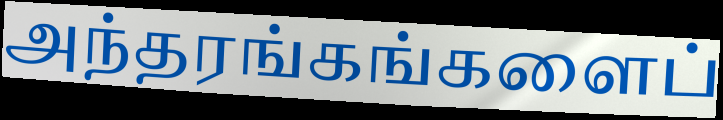
அந்தரங்கங்களைப்